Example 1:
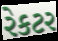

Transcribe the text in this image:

રેકટર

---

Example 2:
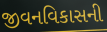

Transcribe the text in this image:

જીવનવિકાસની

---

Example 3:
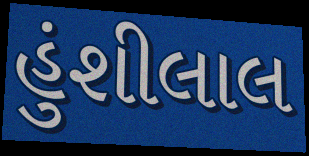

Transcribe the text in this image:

હુંશીલાલ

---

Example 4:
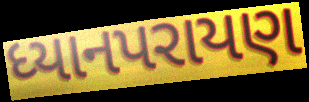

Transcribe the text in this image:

ધ્યાનપરાયણ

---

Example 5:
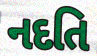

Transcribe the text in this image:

નદતિ